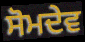
ਸੋਮਦੇਵ